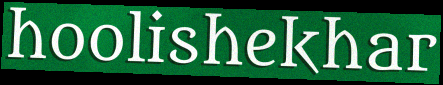
hoolishekhar